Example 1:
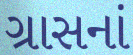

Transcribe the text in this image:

ગ્રાસનાં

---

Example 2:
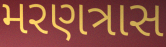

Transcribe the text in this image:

મરણત્રાસ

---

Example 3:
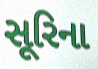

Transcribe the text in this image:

સૂરિના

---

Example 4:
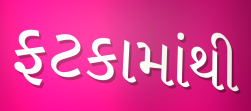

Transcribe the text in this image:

ફટકામાંથી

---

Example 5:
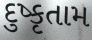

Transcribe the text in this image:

દુષ્કૃતામ